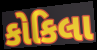
કોકિલા